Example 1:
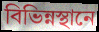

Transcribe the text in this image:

বিভিন্নস্থানে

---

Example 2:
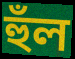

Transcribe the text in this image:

হুঁল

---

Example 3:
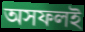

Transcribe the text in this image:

অসফলই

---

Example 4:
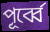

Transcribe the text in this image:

পূর্ব্বে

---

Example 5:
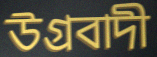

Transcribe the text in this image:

উগ্রবাদী